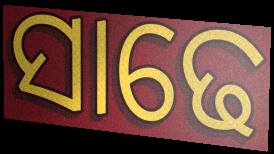
ସାଢେ